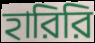
হারিরি